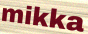
mikka